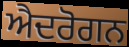
ਐਦਰੋਗਨ